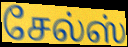
சேல்ஸ்